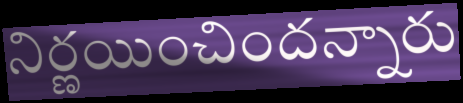
నిర్ణయించిందన్నారు